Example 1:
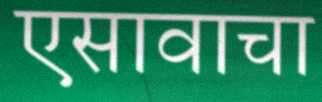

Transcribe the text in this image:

एसावाचा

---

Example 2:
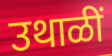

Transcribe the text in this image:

उथाळीं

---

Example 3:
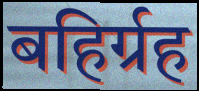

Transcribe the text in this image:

बहिर्ग्रह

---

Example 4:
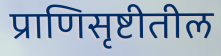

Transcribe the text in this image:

प्राणिसृष्टीतील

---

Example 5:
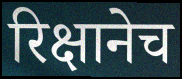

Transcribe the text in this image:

रिक्षानेच